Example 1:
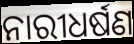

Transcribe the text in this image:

ନାରୀଧର୍ଷଣ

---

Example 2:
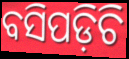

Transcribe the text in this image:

ବସିପଡ଼ିଚି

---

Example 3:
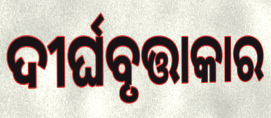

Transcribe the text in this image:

ଦୀର୍ଘବୃତ୍ତାକାର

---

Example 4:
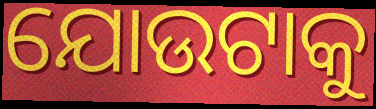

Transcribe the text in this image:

ଯୋଉଟାକୁ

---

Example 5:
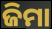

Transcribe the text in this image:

ଜିମା